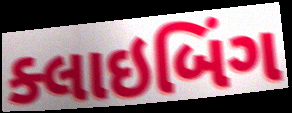
ક્લાઇબિંગ